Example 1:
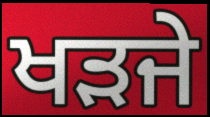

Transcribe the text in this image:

ਖੜਜੇ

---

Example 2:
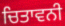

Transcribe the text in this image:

ਚਿਤਾਵਨੀ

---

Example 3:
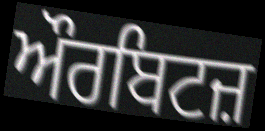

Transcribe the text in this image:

ਔਰਬਿਟਜ਼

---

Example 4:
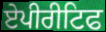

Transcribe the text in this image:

ਏਪੀਰੀਟਿਫ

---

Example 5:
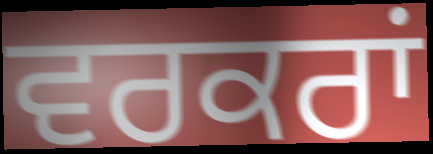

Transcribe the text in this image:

ਵਰਕਰਾਂ